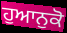
ਹੁਆਨੁਕੋ